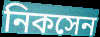
নিকসেন